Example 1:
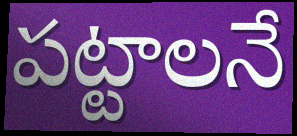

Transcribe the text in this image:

పట్టాలనే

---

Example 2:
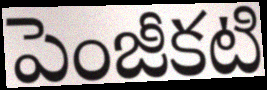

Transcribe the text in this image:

పెంజీకటి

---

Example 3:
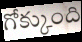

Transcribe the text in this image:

గోక్కుంది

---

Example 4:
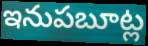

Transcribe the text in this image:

ఇనుపబూట్ల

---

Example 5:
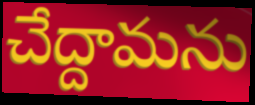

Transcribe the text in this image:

చేద్దామను